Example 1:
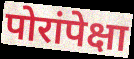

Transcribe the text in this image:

पोरांपेक्षा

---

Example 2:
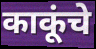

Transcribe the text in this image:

काकूंचे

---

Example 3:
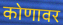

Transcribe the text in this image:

कोणावर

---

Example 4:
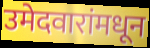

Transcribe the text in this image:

उमेदवारांमधून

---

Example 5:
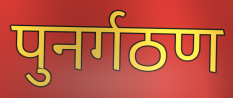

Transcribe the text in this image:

पुनर्गठण